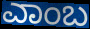
ಎಾಂಬ